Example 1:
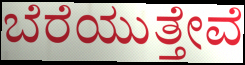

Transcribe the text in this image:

ಬೆರೆಯುತ್ತೇವೆ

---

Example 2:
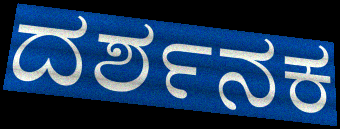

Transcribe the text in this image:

ದರ್ಶನಕ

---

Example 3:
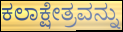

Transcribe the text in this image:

ಕಲಾಕ್ಷೇತ್ರವನ್ನು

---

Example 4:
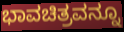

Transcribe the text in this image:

ಭಾವಚಿತ್ರವನ್ನೂ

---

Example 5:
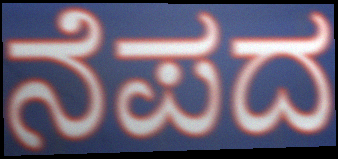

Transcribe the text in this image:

ನೆಪದ